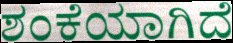
ಶಂಕೆಯಾಗಿದೆ